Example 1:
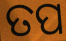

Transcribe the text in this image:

ତପ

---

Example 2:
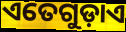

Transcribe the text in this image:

ଏତେଗୁଡ଼ାଏ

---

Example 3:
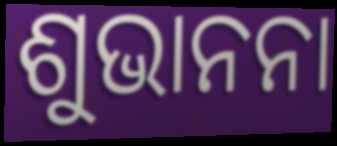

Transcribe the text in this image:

ଶୁଭାନନା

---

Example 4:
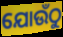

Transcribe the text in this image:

ଯୋଉଁଠୁ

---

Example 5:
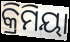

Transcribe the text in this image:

କ୍ରିମିୟା